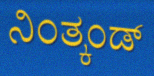
ನಿಂತ್ಕಂಡ್